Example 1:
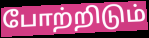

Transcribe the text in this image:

போற்றிடும்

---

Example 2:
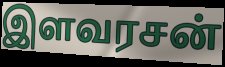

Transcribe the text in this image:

இளவரசன்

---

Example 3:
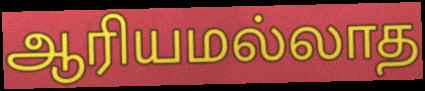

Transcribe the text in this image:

ஆரியமல்லாத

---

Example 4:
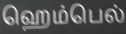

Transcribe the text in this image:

ஹெம்பெல்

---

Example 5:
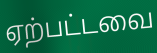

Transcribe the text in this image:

ஏற்பட்டவை